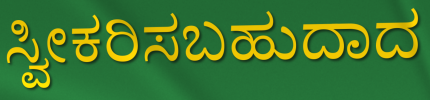
ಸ್ವೀಕರಿಸಬಹುದಾದ